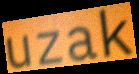
uzak